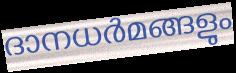
ദാനധർമങ്ങളും